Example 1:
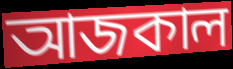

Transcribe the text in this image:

আজকাল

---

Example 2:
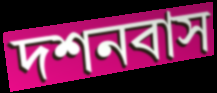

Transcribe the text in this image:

দশনবাস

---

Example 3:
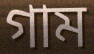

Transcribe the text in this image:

গাম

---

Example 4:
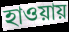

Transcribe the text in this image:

হাওয়ায়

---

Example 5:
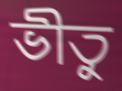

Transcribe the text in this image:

ভীতু